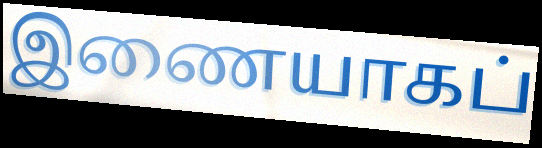
இணையாகப்